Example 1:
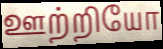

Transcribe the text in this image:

ஊற்றியோ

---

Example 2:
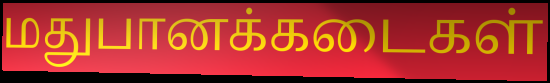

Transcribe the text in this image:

மதுபானக்கடைகள்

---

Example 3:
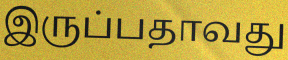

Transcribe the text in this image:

இருப்பதாவது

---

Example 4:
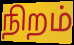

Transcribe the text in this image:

நிறம்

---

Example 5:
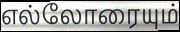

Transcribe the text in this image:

எல்லோரையும்